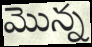
మొన్న